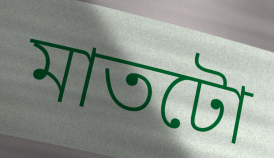
মাতটো